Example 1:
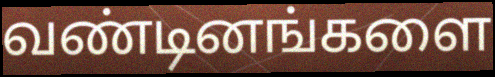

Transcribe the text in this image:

வண்டினங்களை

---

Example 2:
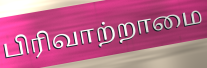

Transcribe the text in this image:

பிரிவாற்றாமை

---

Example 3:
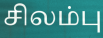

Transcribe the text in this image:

சிலம்பு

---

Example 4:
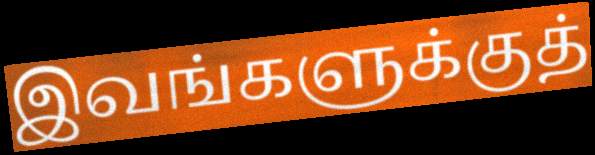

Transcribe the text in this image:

இவங்களுக்குத்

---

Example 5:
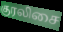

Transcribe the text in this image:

குரலிசை